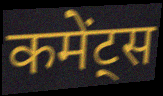
कमेंट्स